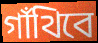
গাঁথিবে